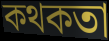
কথকতা